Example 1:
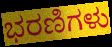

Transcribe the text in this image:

ಭರಣಿಗಳು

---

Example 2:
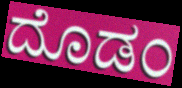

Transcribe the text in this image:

ದೊಡಂ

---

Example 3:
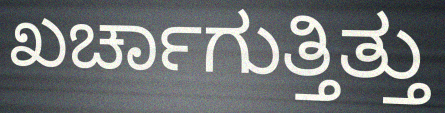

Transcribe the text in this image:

ಖರ್ಚಾಗುತ್ತಿತ್ತು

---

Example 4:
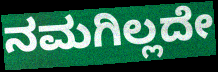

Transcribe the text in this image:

ನಮಗಿಲ್ಲದೇ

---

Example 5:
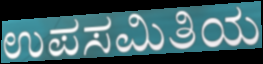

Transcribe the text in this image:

ಉಪಸಮಿತಿಯ